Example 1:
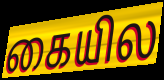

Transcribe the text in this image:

கையில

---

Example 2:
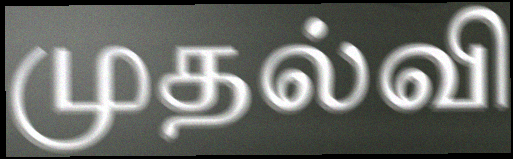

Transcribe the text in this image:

முதல்வி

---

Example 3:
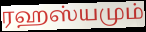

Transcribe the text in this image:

ரஹஸ்யமும்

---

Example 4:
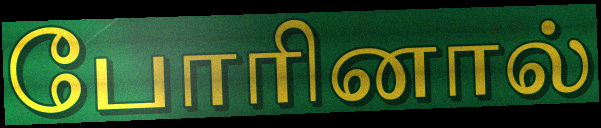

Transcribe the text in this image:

போரினால்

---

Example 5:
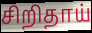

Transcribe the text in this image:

சிறிதாய்